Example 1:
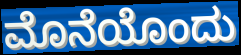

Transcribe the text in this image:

ಮೊನೆಯೊಂದು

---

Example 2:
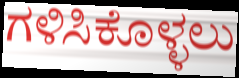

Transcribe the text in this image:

ಗಳಿಸಿಕೊಳ್ಳಲು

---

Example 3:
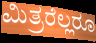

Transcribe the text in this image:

ಮಿತ್ರರೆಲ್ಲರೂ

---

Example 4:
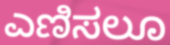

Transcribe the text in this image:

ಎಣಿಸಲೂ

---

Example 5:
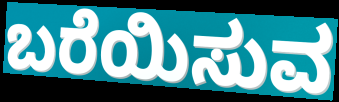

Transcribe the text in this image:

ಬರೆಯಿಸುವ